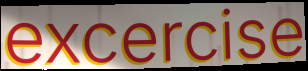
excercise